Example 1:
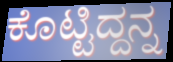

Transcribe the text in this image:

ಕೊಟ್ಟಿದ್ದನ್ನ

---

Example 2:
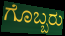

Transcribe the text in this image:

ಗೊಬ್ಬರು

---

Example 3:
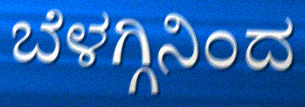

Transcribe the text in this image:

ಬೆಳಗ್ಗಿನಿಂದ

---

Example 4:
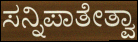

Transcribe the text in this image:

ಸನ್ನಿಪಾತೇತ್ವಾ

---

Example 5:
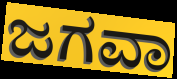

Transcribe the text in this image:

ಜಗವಾ